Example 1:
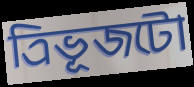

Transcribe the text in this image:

ত্ৰিভূজটো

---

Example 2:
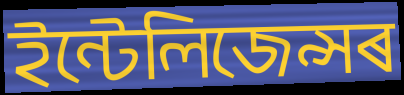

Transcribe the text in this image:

ইন্টেলিজেন্সৰ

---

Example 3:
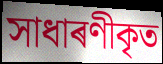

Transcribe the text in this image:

সাধাৰণীকৃত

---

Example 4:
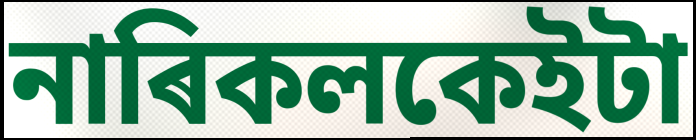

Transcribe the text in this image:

নাৰিকলকেইটা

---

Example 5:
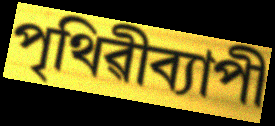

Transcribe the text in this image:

পৃথিৱীব্যাপী